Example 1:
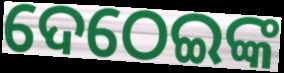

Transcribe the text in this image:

ଦେଠେଇଙ୍କ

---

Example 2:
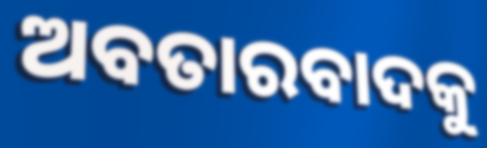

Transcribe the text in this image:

ଅବତାରବାଦକୁ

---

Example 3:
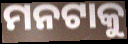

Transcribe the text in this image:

ମନଟାକୁ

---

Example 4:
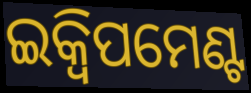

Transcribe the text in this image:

ଇକ୍ୱିପମେଣ୍ଟ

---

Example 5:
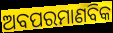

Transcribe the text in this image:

ଅବପରମାଣବିକ